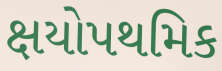
ક્ષયોપથમિક